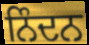
ਨਿੰਦਨ